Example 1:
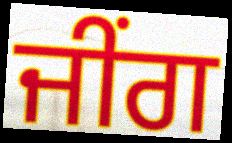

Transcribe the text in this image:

ਜੀਂਗ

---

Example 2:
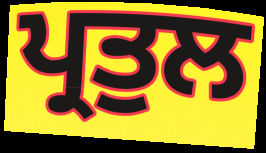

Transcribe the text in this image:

ਪ੍ਰਤੁਲ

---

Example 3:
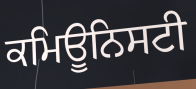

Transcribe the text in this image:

ਕਮਿਊਨਿਸਟੀ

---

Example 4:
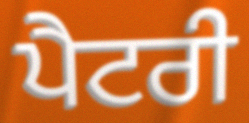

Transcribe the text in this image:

ਪੈਟਰੀ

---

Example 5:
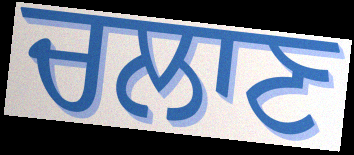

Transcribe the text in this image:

ਚਲਾਣ